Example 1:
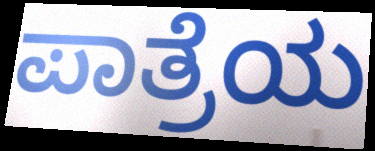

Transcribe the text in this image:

ಪಾತ್ರೆಯ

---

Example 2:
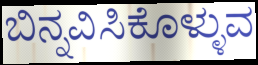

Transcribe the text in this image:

ಬಿನ್ನವಿಸಿಕೊಳ್ಳುವ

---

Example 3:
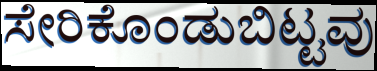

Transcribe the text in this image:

ಸೇರಿಕೊಂಡುಬಿಟ್ಟವು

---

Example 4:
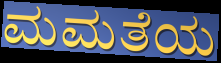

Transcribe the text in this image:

ಮಮತೆಯ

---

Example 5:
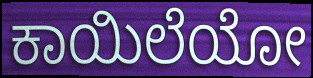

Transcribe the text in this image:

ಕಾಯಿಲೆಯೋ